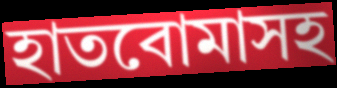
হাতবোমাসহ